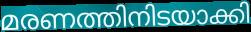
മരണത്തിനിടയാക്കി